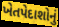
ખેતપેદાશોનું